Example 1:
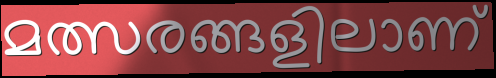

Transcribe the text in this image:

മത്സരങ്ങളിലാണ്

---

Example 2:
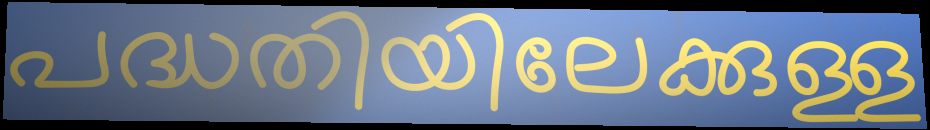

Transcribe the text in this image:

പദ്ധതിയിലേക്കുള്ള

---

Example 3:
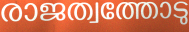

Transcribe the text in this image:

രാജത്വത്തോടു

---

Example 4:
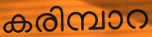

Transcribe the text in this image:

കരിമ്പാറ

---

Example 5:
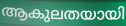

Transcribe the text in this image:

ആകുലതയായി